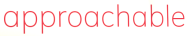
approachable